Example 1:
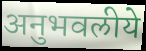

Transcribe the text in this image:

अनुभवलीये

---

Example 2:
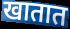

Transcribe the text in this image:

खातात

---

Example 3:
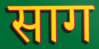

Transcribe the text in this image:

साग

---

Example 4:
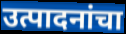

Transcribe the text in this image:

उत्पादनांचा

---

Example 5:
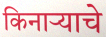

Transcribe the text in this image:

किनाऱ्याचे